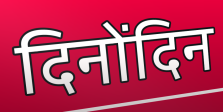
दिनोंदिन